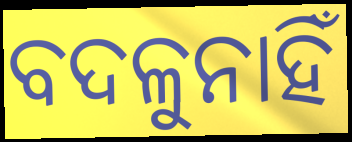
ବଦଳୁନାହିଁ